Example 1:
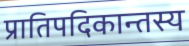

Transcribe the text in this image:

प्रातिपदिकान्तस्य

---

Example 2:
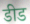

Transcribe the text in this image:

डीड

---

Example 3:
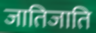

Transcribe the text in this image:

जातिजाति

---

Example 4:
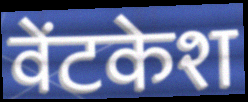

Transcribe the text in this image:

वेंटकेश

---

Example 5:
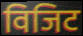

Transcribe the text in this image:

विजिट